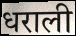
धराली